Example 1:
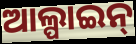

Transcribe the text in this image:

ଆଲ୍ପାଇନ୍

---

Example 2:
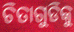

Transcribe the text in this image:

ଚିତାଗୁଡିକୁ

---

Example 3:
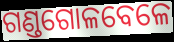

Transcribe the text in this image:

ଗଣ୍ଡଗୋଳବେଳେ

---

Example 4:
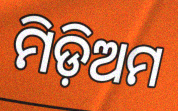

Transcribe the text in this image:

ମିଡ଼ିଅମ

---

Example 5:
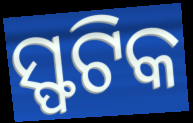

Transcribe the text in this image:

ସ୍ଫଟିକ